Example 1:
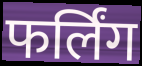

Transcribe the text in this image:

फर्लिंग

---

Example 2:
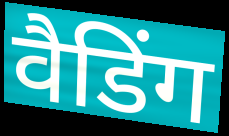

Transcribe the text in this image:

वैडिंग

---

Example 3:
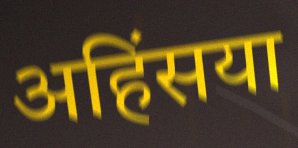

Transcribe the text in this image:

अहिंसया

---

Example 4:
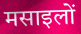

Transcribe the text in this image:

मसाइलों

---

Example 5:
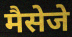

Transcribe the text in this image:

मैसेजे